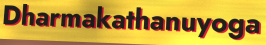
Dharmakathanuyoga